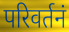
परिवर्तनं